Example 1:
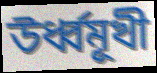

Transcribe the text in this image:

উর্ধ্বমূখী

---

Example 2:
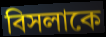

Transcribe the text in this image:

বিসলাকে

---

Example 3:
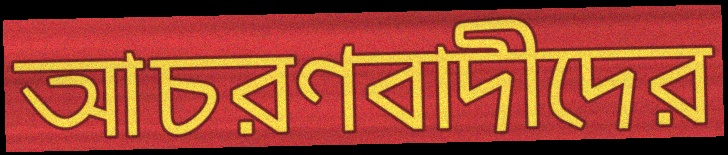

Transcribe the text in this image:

আচরণবাদীদের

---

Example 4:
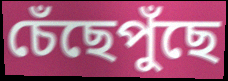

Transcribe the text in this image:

চেঁছেপুঁছে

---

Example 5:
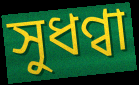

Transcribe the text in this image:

সুধণ্বা